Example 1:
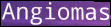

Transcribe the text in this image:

Angiomas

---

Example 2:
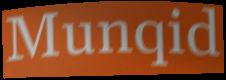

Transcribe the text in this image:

Munqid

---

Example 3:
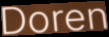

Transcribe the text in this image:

Doren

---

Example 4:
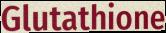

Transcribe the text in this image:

Glutathione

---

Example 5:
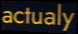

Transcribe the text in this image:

actualy